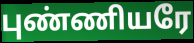
புண்ணியரே